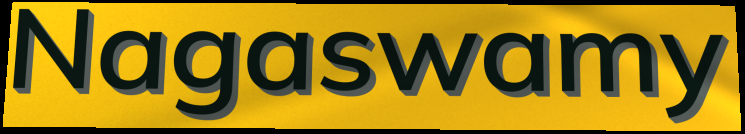
Nagaswamy